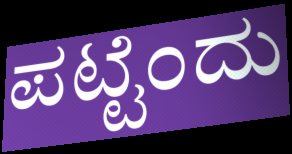
ಪಟ್ಟೆಂದು